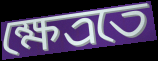
ক্ষেত্ৰতে